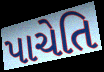
પાચેતિ